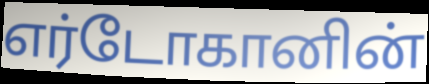
எர்டோகானின்